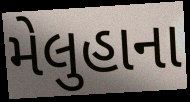
મેલુહાના